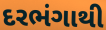
દરભંગાથી